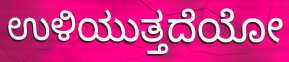
ಉಳಿಯುತ್ತದೆಯೋ